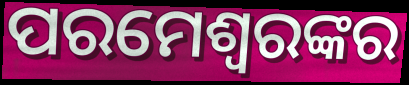
ପରମେଶ୍ଵରଙ୍କର